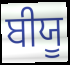
ਬੀਯੂ